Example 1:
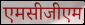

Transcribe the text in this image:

एमसीजीएम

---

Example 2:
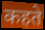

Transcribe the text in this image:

कहते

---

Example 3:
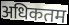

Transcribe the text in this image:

अधिकतम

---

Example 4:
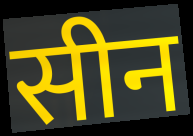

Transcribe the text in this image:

सीन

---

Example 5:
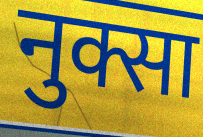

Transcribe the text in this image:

नुक्सा